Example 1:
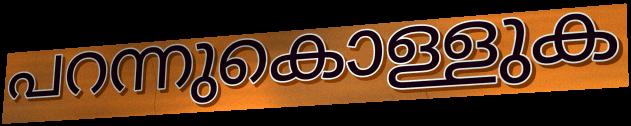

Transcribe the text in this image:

പറന്നുകൊള്ളുക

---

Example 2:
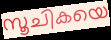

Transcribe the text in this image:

സൂചികയെ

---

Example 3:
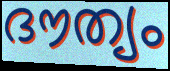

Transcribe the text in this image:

ദൗത്യം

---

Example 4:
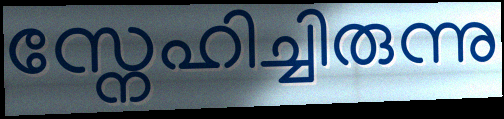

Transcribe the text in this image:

സ്നേഹിച്ചിരുന്നു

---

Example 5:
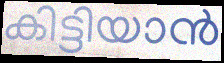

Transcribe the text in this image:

കിട്ടിയാൻ